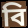
বি